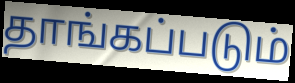
தாங்கப்படும்